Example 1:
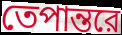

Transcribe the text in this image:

তেপান্তরে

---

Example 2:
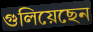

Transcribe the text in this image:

গুলিয়েছেন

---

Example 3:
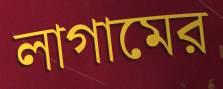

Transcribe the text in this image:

লাগামের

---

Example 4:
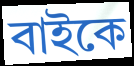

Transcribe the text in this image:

বাইকে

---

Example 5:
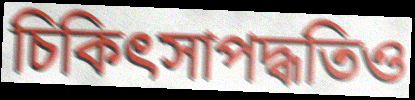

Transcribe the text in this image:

চিকিৎসাপদ্ধতিও